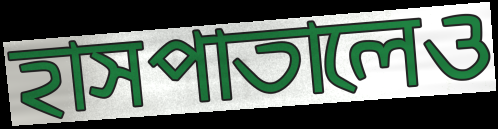
হাসপাতালেও